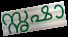
സ്നുഷാ